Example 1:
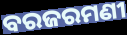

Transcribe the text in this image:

ବରଜରମଣୀ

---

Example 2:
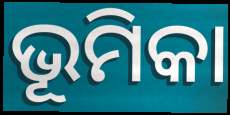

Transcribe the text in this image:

ଭୂମିକା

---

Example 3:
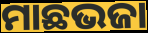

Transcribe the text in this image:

ମାଛଭଜା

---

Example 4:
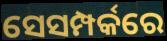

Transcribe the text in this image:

ସେସମ୍ପର୍କରେ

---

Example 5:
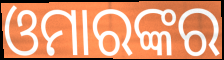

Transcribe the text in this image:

ଓମାରଙ୍କର